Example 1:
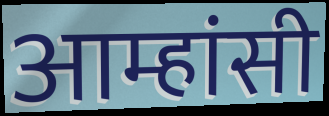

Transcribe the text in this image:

आम्हांसी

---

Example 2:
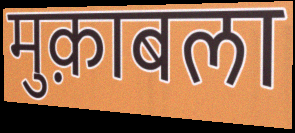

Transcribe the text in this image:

मुक़ाबला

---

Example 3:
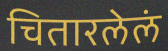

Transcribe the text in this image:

चितारलेलं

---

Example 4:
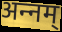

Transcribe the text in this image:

अन्नम्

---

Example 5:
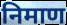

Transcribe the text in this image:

निमाण